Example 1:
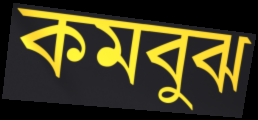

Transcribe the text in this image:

কমবুঝ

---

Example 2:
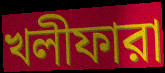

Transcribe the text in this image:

খলীফারা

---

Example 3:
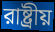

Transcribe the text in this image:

রাষ্ট্রীয়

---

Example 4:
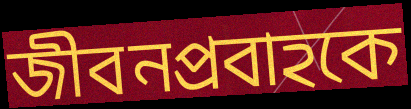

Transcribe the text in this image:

জীবনপ্রবাহকে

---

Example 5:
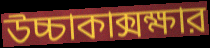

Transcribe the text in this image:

উচ্চাকাক্সক্ষার